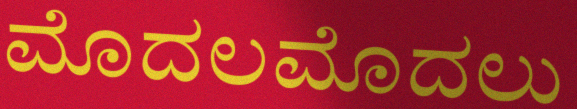
ಮೊದಲಮೊದಲು